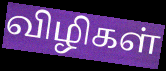
விழிகள்